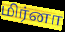
மிர்னா